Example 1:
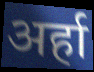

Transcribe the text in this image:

अर्हा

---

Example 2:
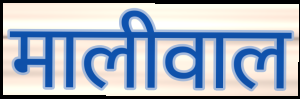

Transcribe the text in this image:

मालीवाल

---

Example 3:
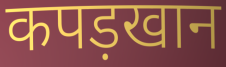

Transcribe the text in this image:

कपड़खान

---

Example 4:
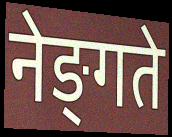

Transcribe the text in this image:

नेङ्गते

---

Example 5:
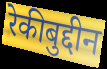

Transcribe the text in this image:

रेकीबुद्दीन